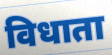
विधाता